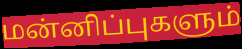
மன்னிப்புகளும்